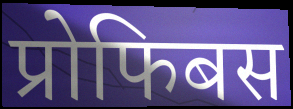
प्रोफिबस